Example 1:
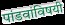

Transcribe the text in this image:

पांडवांविषयी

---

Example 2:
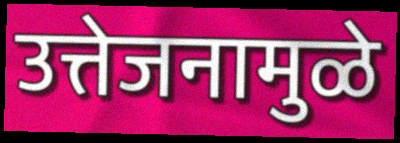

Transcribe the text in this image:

उत्तेजनामुळे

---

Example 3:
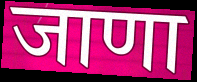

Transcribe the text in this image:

जाणा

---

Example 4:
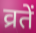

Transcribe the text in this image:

व्रतें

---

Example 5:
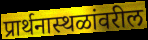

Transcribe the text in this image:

प्रार्थनास्थळांवरील